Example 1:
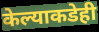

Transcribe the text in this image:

केल्याकडेही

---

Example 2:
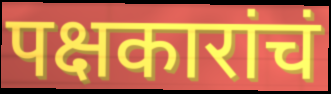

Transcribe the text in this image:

पक्षकारांचं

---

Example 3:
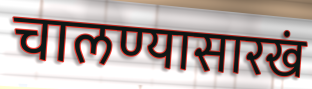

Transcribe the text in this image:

चालण्यासारखं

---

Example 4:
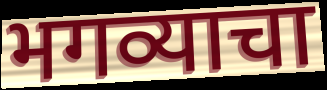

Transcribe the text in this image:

भगव्याचा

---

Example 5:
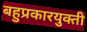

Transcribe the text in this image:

बहुप्रकारयुक्ती